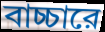
বাচ্চারে